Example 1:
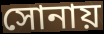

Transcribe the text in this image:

সোনায়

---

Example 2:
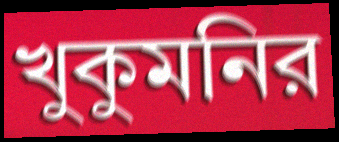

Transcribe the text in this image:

খুকুমনির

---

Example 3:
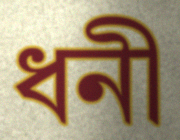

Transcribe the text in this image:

ধনী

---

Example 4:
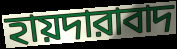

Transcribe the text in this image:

হায়দারাবাদ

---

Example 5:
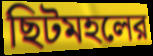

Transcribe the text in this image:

ছিটমহলের